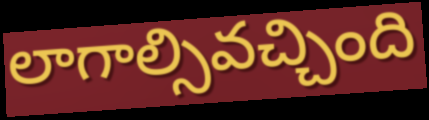
లాగాల్సివచ్చింది